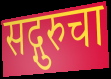
सद्गुरुचा